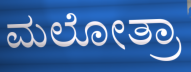
ಮಲೋತ್ರಾ